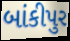
બાંકીપુર